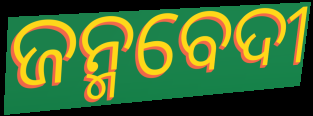
ଜନ୍ମବେଦୀ